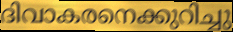
ദിവാകരനെക്കുറിച്ചു